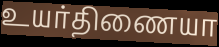
உயர்திணையா